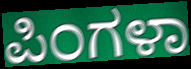
ಪಿಂಗಳಾ